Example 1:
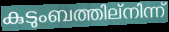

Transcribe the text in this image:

കുടുംബത്തില്നിന്ന്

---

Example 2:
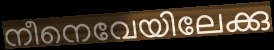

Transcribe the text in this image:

നീനെവേയിലേക്കു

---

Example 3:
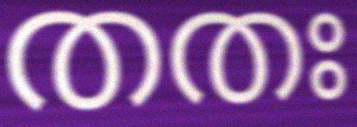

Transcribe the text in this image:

തതഃ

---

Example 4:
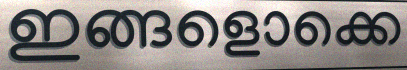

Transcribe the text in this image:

ഇങ്ങളൊക്കെ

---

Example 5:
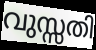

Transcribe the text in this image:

വുസ്സതി